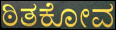
ಠಿತಕೋವ